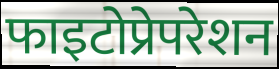
फाइटोप्रेपरेशन